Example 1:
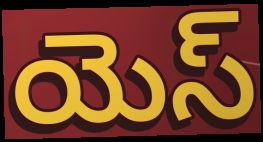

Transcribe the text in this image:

యెస్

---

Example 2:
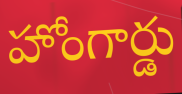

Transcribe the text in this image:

హోంగార్డు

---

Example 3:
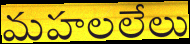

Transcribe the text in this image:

మహలలేలు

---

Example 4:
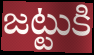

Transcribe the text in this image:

జట్టుకి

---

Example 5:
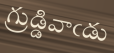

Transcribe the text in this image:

గ్రుడ్డివాఁడు